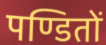
पण्डितों